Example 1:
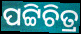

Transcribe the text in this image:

ପଟ୍ଟିଚିତ୍ର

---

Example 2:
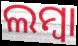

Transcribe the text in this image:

ଲମ୍ବା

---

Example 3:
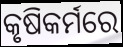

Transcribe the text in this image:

କୃଷିକର୍ମରେ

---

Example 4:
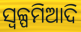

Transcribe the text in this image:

ସ୍ବଳ୍ପମିଆଦି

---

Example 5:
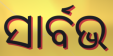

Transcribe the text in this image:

ସାର୍ବଭ